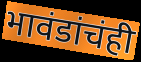
भावंडांचंही